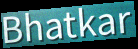
Bhatkar